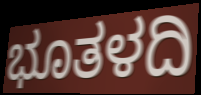
ಭೂತಳದಿ